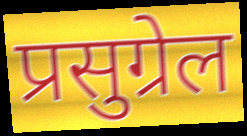
प्रसुग्रेल